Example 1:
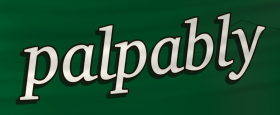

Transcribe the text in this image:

palpably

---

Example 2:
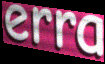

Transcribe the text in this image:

erra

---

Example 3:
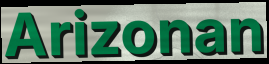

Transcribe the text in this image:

Arizonan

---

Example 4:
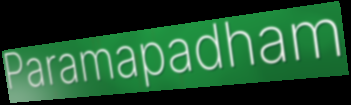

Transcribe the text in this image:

Paramapadham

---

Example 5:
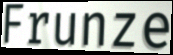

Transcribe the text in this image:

Frunze